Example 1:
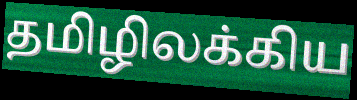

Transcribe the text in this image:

தமிழிலக்கிய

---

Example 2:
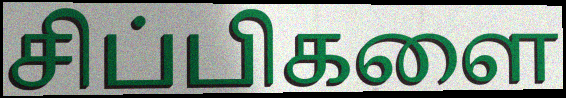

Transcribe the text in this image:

சிப்பிகளை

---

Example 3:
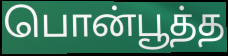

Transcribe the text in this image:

பொன்பூத்த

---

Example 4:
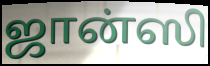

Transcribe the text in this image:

ஜான்ஸி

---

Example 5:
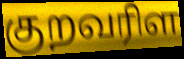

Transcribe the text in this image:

குறவரிள